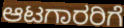
ಆಟಗಾರರಿಗೆ